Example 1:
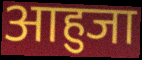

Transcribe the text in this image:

आहुजा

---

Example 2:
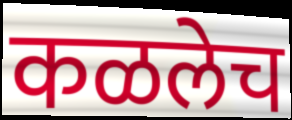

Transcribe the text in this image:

कळलेच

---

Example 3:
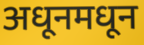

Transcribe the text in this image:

अधूनमधून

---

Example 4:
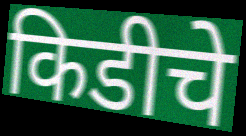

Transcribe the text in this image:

किडीचे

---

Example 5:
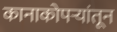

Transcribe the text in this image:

कानाकोपर्‍यांतून